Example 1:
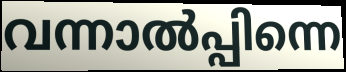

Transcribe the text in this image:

വന്നാൽപ്പിന്നെ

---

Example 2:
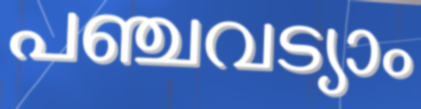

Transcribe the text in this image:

പഞ്ചവട്യാം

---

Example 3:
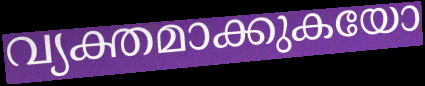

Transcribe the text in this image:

വ്യക്തമാക്കുകയോ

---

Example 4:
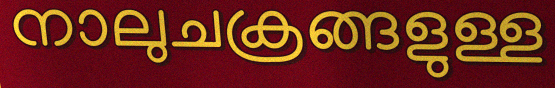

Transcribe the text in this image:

നാലുചക്രങ്ങളുള്ള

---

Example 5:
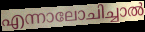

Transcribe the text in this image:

എന്നാലോചിച്ചാൽ